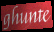
ghunte